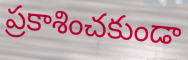
ప్రకాశించకుండా